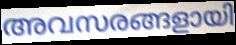
അവസരങ്ങളായി